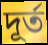
দূর্ত